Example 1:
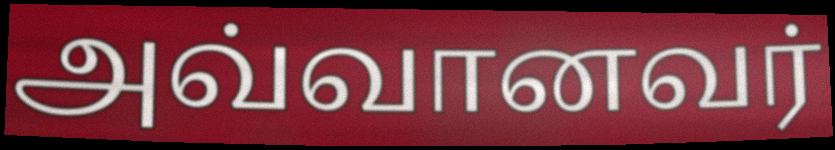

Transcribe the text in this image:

அவ்வானவர்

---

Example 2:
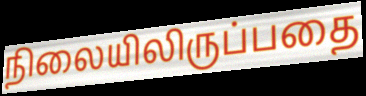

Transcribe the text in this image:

நிலையிலிருப்பதை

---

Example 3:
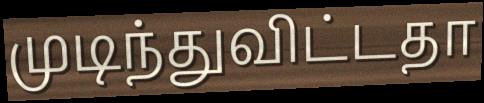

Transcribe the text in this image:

முடிந்துவிட்டதா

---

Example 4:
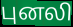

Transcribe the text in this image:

புனலி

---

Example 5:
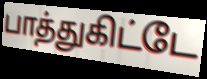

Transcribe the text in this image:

பாத்துகிட்டே